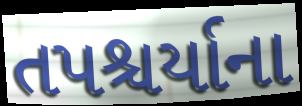
તપશ્ચર્યાના